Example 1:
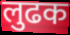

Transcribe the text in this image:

लुढक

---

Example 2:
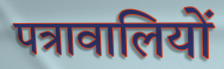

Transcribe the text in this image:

पत्रावालियों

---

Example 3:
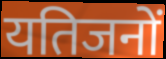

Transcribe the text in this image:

यतिजनों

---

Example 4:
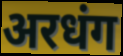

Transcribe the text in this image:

अरधंग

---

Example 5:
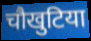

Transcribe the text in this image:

चौखुटिया